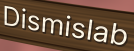
Dismislab